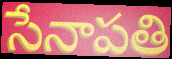
సేనాపతి